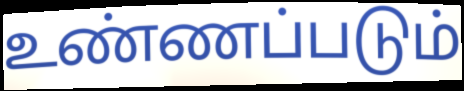
உண்ணப்படும்